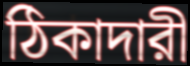
ঠিকাদারী